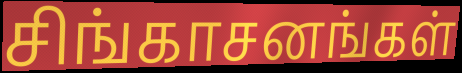
சிங்காசனங்கள்